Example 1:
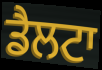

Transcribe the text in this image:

ਡੈਲਟਾ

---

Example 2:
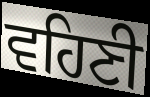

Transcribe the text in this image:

ਵਹਿਣੀ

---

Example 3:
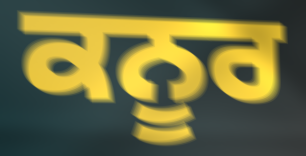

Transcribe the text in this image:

ਕਨੂਰ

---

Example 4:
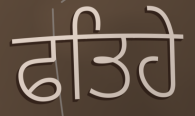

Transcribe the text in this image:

ਫਤਿਹੇ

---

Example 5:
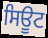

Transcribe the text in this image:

ਸਿਊਟ